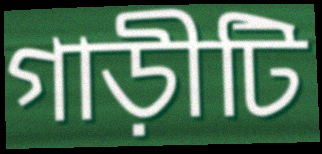
গাড়ীটি